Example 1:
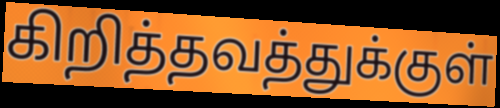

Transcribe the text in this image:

கிறித்தவத்துக்குள்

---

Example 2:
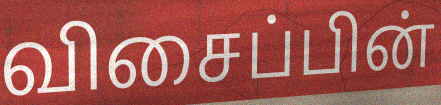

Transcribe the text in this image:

விசைப்பின்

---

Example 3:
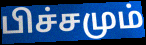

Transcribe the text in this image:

பிச்சமும்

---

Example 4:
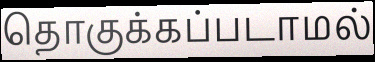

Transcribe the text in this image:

தொகுக்கப்படாமல்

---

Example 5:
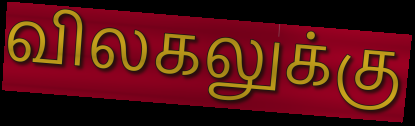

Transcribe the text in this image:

விலகலுக்கு